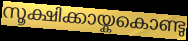
സൂക്ഷിക്കായ്കകൊണ്ടു